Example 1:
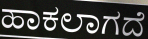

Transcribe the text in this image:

ಹಾಕಲಾಗದೆ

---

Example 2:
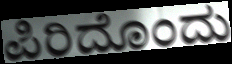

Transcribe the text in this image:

ಪಿರಿದೊಂದು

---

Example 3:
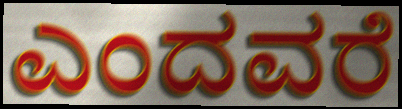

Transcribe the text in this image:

ಎಂದವರೆ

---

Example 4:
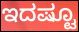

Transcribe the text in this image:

ಇದಷ್ಟೂ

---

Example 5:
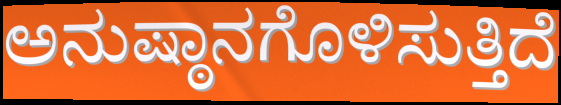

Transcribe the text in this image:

ಅನುಷ್ಠಾನಗೊಳಿಸುತ್ತಿದೆ